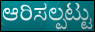
ಆರಿಸಲ್ಪಟ್ಟು